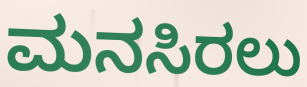
ಮನಸಿರಲು